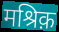
मश्रिक़